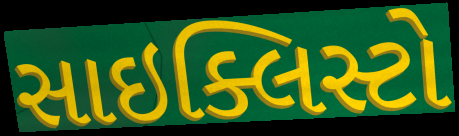
સાઇક્લિસ્ટો